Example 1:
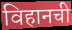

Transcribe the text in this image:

विहानची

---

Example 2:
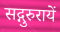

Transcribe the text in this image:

सद्गुरुरायें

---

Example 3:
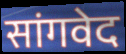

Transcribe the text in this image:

सांगवेद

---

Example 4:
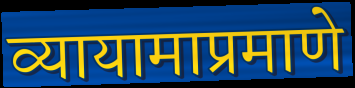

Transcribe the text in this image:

व्यायामाप्रमाणे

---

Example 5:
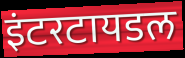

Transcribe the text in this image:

इंटरटायडल